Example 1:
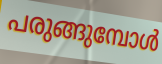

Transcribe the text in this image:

പരുങ്ങുമ്പോൾ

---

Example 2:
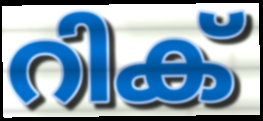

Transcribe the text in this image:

റിക്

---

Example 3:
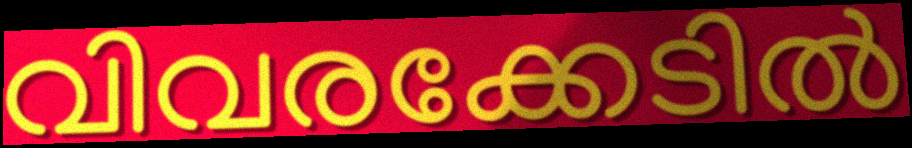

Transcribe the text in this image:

വിവരക്കേടിൽ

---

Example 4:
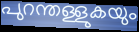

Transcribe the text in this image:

പുറന്തള്ളുകയും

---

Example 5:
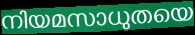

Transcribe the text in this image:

നിയമസാധുതയെ